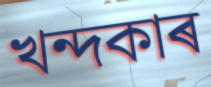
খন্দকাৰ